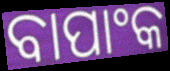
ବାପାଂକ